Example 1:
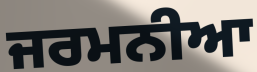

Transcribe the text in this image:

ਜਰਮਨੀਆ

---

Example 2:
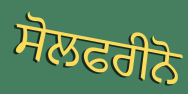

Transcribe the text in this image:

ਸੋਲਫਰੀਨੋ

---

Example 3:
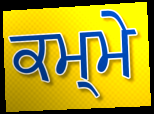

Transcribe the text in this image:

ਕਮ੍ਮੇ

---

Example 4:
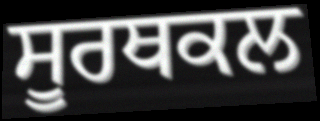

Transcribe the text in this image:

ਸੂਰਥਕਲ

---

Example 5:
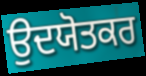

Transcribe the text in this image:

ਉਦਯੋਤਕਰ